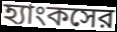
হ্যাংকসের